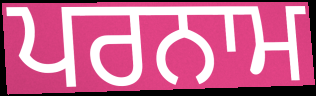
ਪਰਨਾਮ